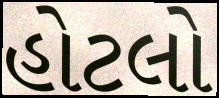
હોટલો